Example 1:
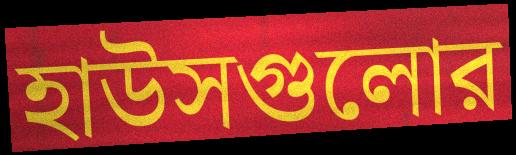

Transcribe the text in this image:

হাউসগুলোর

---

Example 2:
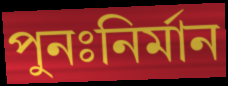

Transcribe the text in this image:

পুনঃনির্মান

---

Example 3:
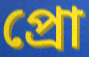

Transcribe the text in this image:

প্রো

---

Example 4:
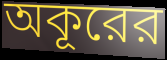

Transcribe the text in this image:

অকূরের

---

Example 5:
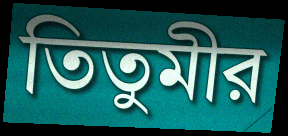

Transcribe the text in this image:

তিতুমীর